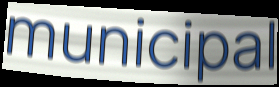
municipal